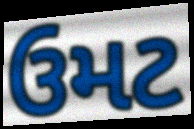
ઉમટ